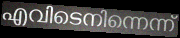
എവിടെനിന്നെന്ന്